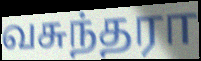
வசுந்தரா